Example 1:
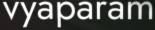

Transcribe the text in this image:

vyaparam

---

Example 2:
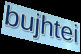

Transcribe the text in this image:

bujhtei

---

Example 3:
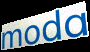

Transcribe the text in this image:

moda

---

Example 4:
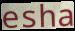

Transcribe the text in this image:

esha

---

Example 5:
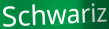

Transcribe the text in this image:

Schwariz